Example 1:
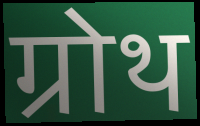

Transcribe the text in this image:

ग्रोथ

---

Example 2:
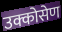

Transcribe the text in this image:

उक्कोसेण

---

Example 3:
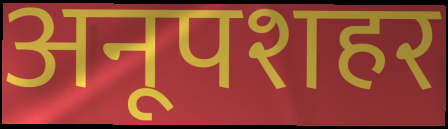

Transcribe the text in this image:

अनूपशहर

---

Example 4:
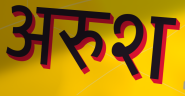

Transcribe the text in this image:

अरुश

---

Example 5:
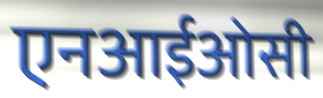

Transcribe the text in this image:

एनआईओसी